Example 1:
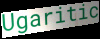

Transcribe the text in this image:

Ugaritic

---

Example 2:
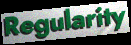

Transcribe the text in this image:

Regularity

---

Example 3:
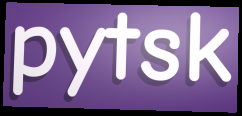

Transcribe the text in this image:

pytsk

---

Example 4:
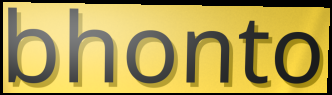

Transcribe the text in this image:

bhonto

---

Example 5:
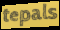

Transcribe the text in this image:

tepals